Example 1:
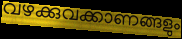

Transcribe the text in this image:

വഴക്കുവക്കാണങ്ങളും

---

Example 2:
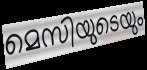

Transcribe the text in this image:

മെസിയുടെയും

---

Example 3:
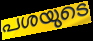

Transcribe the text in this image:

പശയുടെ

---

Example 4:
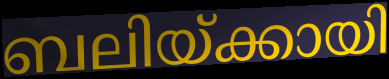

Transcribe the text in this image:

ബലിയ്ക്കായി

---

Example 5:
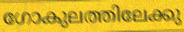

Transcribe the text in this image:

ഗോകുലത്തിലേക്കു